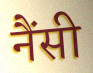
नैंसी